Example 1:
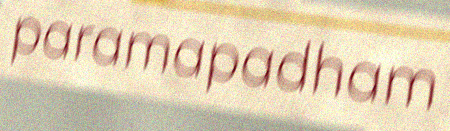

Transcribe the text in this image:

paramapadham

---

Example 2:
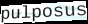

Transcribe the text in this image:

pulposus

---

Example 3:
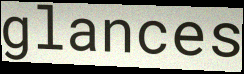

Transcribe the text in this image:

glances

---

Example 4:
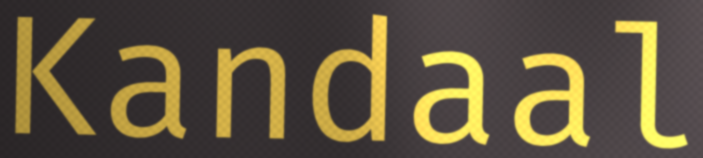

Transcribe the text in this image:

Kandaal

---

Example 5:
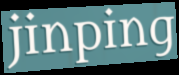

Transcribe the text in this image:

jinping